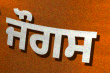
ਜੌਗਸ